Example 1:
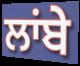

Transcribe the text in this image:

ਲਾਂਬੇ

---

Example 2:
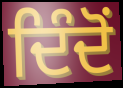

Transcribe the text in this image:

ਦਿੰਦੋਂ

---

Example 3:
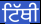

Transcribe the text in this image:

ਟਿੱਥੀ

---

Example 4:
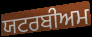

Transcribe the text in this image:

ਯਟਰਬੀਅਮ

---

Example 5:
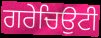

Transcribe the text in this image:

ਗਰੇਚਿਉਟੀ